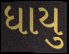
ધાયુ